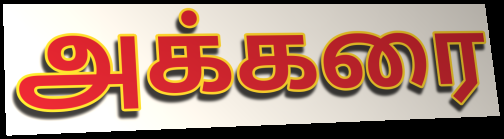
அக்கரை